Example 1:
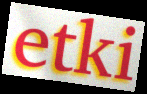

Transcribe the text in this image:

etki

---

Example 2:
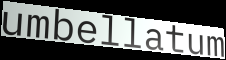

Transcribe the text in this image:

umbellatum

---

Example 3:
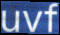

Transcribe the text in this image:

uvf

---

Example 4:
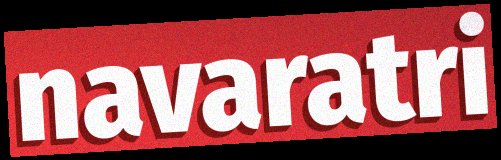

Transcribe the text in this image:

navaratri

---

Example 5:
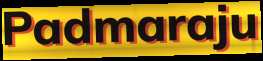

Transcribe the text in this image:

Padmaraju